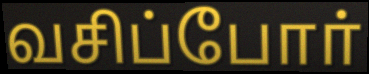
வசிப்போர்